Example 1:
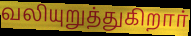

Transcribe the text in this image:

வலியுறுத்துகிறார்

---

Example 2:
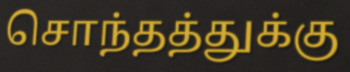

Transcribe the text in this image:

சொந்தத்துக்கு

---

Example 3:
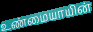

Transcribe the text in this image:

உண்மையாயின்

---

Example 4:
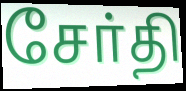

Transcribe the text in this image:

சேர்தி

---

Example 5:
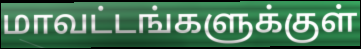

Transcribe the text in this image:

மாவட்டங்களுக்குள்